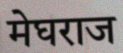
मेघराज